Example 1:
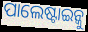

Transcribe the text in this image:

ପାଲେଷ୍ଟାଇନ୍କୁ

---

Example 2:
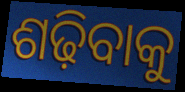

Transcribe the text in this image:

ଶଢ଼ିବାକୁ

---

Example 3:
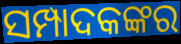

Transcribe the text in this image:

ସମ୍ପାଦକଙ୍କର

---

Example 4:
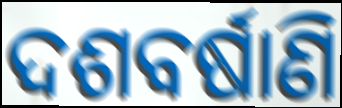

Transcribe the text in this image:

ଦଶବର୍ଷାଣି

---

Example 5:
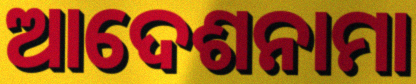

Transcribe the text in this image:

ଆଦେଶନାମା